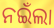
ନଇଁଲା